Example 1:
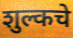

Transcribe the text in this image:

शुल्कचे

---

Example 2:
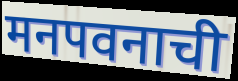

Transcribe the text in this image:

मनपवनाची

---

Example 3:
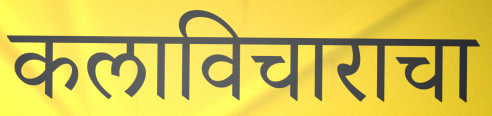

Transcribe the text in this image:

कलाविचाराचा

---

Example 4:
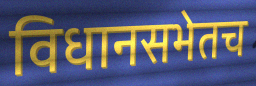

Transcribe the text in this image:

विधानसभेतच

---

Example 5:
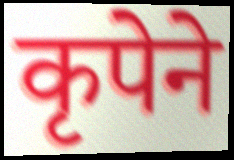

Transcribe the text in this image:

कृपेने